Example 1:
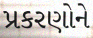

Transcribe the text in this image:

પ્રકરણોને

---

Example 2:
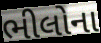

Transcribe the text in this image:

ભીલોના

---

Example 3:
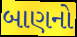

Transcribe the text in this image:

બાણનો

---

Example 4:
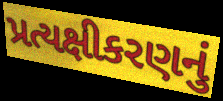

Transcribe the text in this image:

પ્રત્યક્ષીકરણનું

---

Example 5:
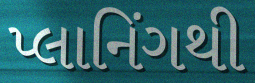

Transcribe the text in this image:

પ્લાનિંગથી